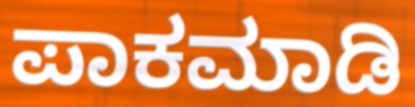
ಪಾಕಮಾಡಿ